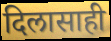
दिलासाही